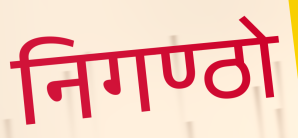
निगण्ठो